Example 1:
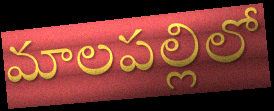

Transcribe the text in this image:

మాలపల్లిలో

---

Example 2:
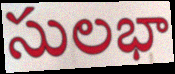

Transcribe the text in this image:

సులభా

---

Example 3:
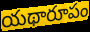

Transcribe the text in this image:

యథారూపం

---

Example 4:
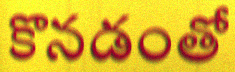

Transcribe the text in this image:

కొనడంతో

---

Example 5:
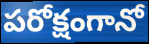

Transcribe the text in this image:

పరోక్షంగానో